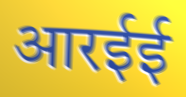
आरईई